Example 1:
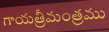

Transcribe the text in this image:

గాయత్రీమంత్రము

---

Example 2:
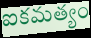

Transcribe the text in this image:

ఐకమత్యం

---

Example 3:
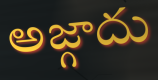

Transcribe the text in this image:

అజ్గాదు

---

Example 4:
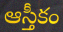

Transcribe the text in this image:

ఆస్తీకం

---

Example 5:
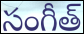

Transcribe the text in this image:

సంగీత్